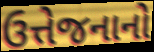
ઉત્તેજનાનો